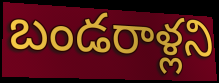
బండరాళ్లని